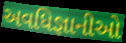
અવધિજ્ઞાનીઓ